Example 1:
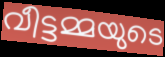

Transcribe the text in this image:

വീട്ടമ്മയുടെ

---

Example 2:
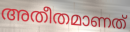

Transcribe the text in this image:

അതീതമാണത്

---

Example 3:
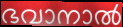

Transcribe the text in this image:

ഭവാനാൽ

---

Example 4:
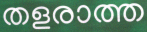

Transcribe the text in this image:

തളരാത്ത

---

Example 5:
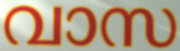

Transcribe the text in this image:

വാസ